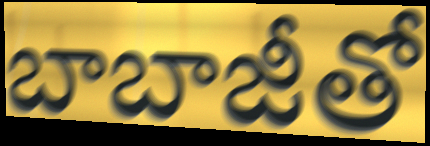
బాబాజీతో